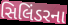
સિલિંડરના